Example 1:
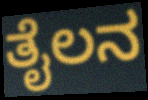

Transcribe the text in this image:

ತೈಲನ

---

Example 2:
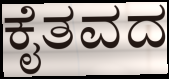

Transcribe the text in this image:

ಕೈತವದ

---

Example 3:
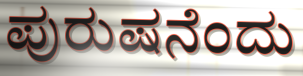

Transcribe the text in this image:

ಪುರುಷನೆಂದು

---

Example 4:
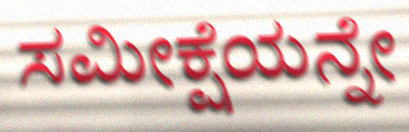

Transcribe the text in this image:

ಸಮೀಕ್ಷೆಯನ್ನೇ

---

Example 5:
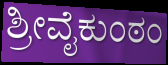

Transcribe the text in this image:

ಶ್ರೀವೈಕುಂಠಂ